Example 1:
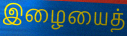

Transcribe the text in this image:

இழையைத்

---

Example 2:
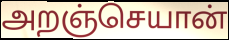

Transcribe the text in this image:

அறஞ்செயான்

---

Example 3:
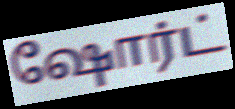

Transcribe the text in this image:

ஷோர்ட்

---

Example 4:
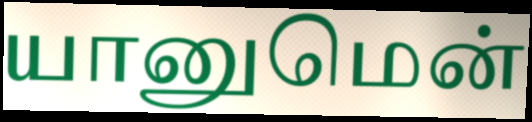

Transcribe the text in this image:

யானுமென்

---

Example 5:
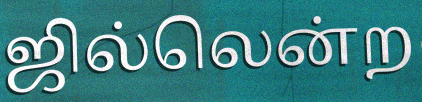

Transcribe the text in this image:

ஜில்லென்ற